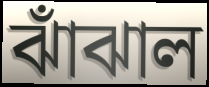
ঝাঁঝাল